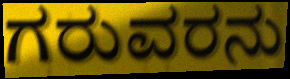
ಗರುವರನು